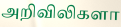
அறிவிலிகளா